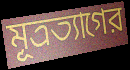
মূত্রত্যাগের